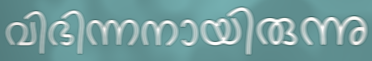
വിഭിന്നനായിരുന്നു